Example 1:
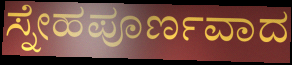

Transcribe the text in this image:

ಸ್ನೇಹಪೂರ್ಣವಾದ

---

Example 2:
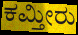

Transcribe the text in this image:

ಕಮ್ತೀರು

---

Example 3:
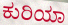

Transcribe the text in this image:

ಕುರಿಯಾ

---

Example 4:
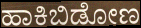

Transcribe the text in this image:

ಹಾಕಿಬಿಡೋಣ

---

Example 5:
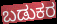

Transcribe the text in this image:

ಬಡುಕರ